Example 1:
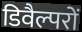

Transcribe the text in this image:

डिवैल्परों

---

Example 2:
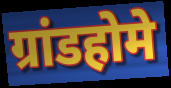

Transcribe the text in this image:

ग्रांडहोमे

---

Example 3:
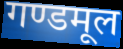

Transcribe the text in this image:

गण्डमूल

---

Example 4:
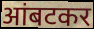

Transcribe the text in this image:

आंबटकर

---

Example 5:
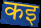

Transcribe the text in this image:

कइ